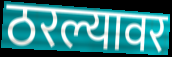
ठरल्यावर